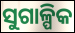
ସୁଗାଳ୍ପିକ